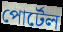
পোর্টেল